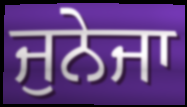
ਜੁਨੇਜਾ